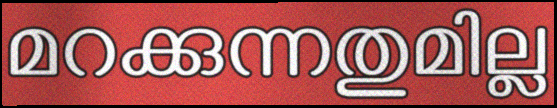
മറക്കുന്നതുമില്ല